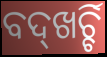
ବଦ୍‌ଖର୍ଚ୍ଚି